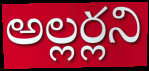
అల్లర్లని